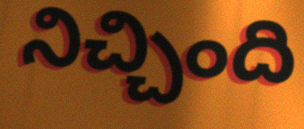
నిచ్చింది